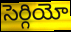
సెర్గియో